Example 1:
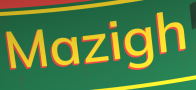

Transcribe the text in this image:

Mazigh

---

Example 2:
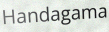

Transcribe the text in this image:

Handagama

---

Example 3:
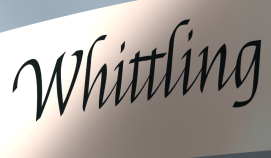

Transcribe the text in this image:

Whittling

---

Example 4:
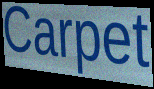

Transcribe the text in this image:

Carpet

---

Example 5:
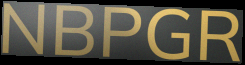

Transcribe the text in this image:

NBPGR